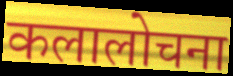
कलालोचना